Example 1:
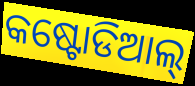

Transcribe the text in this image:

କଷ୍ଟୋଡିଆଲ୍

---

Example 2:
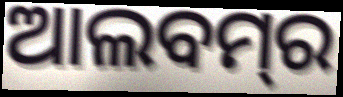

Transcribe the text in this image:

ଆଲବମ୍‌ର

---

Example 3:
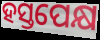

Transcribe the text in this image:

ହସ୍ତପେକ୍ଷ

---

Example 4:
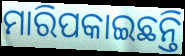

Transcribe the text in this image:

ମାରିପକାଇଛନ୍ତି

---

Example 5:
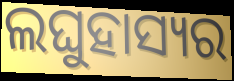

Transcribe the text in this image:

ଲଘୁହାସ୍ୟର